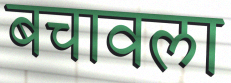
बचावला